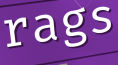
rags